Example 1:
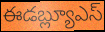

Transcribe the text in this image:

ఈడబ్ల్యూఎస్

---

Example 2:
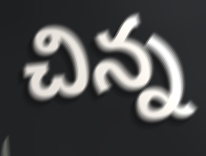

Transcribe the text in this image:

చిన్న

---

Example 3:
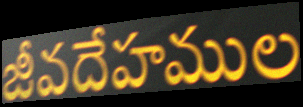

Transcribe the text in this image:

జీవదేహముల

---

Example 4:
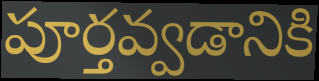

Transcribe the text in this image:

పూర్తవ్వడానికి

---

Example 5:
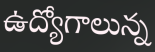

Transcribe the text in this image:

ఉద్యోగాలున్న